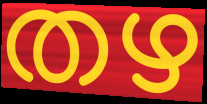
തഴ